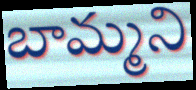
బామ్మని